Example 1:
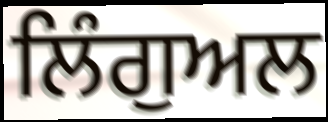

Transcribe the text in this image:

ਲਿੰਗੁਅਲ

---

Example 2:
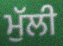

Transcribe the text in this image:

ਮੁੱਲੀ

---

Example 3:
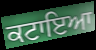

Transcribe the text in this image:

ਕਟਾਇਆ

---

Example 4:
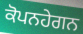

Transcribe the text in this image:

ਕੋਪਨਹੇਗਨ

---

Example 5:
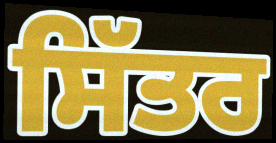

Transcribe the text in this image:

ਸਿੱਤਰ